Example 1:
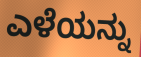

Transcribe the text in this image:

ಎಳೆಯನ್ನು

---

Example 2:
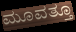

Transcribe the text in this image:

ಮೂವತ್ತೂ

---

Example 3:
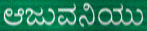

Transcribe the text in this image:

ಆಜುವನಿಯು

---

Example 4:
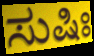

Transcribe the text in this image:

ಸುಷಿಃ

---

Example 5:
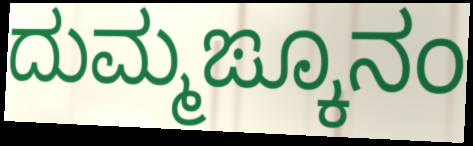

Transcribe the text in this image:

ದುಮ್ಮಙ್ಕೂನಂ